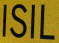
ISIL